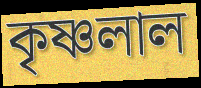
কৃষ্ণলাল